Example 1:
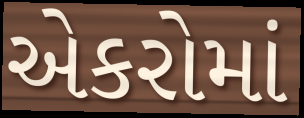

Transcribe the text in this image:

એકરોમાં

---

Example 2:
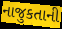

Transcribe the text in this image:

નાજુકતાની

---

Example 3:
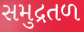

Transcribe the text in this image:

સમુદ્રતળ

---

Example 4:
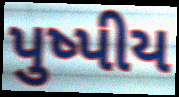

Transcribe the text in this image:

પુષ્પીય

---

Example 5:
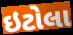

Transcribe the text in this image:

ઇટોલા